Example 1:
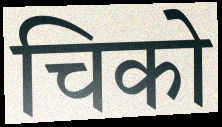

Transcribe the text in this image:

चिको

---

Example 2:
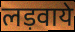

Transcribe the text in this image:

लड़वाये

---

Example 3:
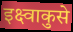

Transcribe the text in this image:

इक्ष्वाकुसे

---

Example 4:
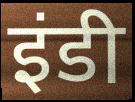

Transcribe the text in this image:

इंडी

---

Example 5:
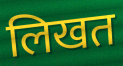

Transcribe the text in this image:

लिखत